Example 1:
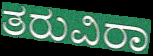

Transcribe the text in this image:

ತರುವಿರಾ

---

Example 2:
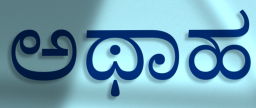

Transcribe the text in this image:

ಅಥಾಹ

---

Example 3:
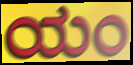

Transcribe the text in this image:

ಯಂ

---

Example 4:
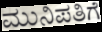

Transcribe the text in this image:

ಮುನಿಪತಿಗೆ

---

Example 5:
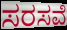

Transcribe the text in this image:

ಸರಸವೆ